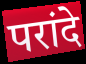
परांदे